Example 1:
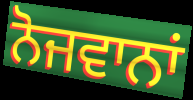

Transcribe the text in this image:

ਨੋਜਵਾਨਾਂ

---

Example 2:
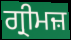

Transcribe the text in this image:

ਗ੍ਰੀਮਜ਼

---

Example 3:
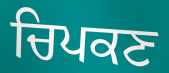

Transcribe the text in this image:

ਚਿਪਕਣ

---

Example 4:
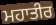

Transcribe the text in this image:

ਮਹਾਤੀਰ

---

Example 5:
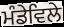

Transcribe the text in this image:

ਮੰਡੇਵਿਲੇ